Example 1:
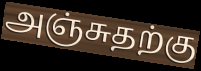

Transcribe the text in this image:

அஞ்சுதற்கு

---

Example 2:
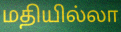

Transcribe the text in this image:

மதியில்லா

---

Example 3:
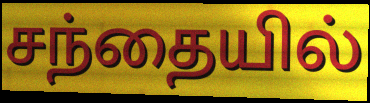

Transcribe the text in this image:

சந்தையில்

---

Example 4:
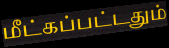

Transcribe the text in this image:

மீட்கப்பட்டதும்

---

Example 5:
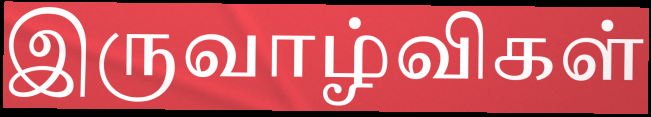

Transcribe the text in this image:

இருவாழ்விகள்